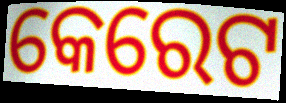
କେରେଟ